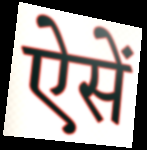
ऐसें